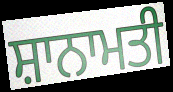
ਸ਼ਾਨਾਮਤੀ